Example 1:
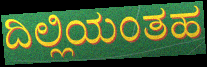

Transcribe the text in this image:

ದಿಲ್ಲಿಯಂತಹ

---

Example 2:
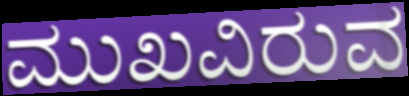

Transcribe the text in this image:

ಮುಖವಿರುವ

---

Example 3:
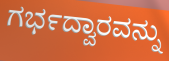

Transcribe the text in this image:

ಗರ್ಭದ್ವಾರವನ್ನು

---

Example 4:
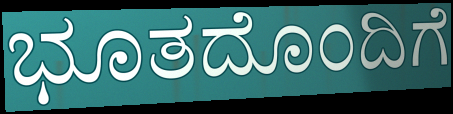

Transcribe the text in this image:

ಭೂತದೊಂದಿಗೆ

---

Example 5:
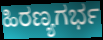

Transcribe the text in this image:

ಹಿರಣ್ಯಗರ್ಭ